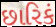
છારિકં